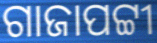
ଗାଜାପଟ୍ଟୀ